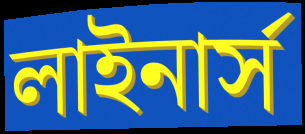
লাইনার্স